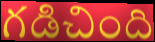
గడిచింది